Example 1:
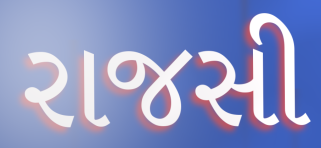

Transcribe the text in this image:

રાજસી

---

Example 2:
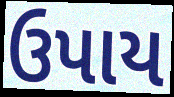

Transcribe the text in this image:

ઉપાય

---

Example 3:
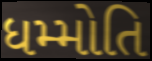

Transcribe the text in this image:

ધમ્મોતિ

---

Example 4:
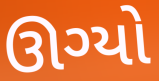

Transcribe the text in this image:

ઊગ્યો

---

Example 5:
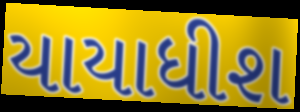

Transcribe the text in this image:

યાયાધીશ